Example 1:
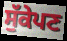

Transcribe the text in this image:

ਸੁੱਕੇਪਣ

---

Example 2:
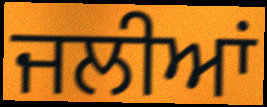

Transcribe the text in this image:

ਜਲੀਆਂ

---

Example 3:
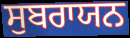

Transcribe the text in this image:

ਸੁਬਰਾਯਨ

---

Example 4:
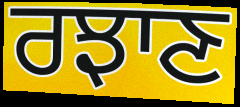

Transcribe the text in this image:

ਰਝਾਣ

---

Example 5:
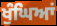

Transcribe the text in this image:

ਖੁੰਘਿਆਂ